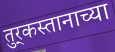
तुर्कस्तानाच्या